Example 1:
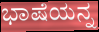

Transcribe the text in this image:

ಭಾಷೆಯನ್ನ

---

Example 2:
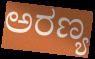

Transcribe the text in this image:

ಅರಣ್ಯ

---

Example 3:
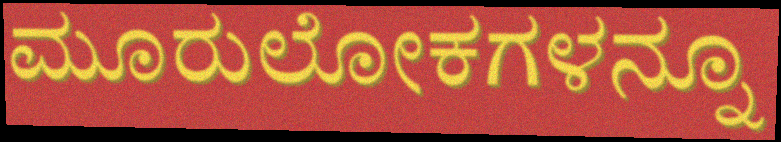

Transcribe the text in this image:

ಮೂರುಲೋಕಗಳನ್ನೂ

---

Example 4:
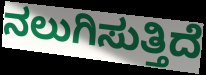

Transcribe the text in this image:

ನಲುಗಿಸುತ್ತಿದೆ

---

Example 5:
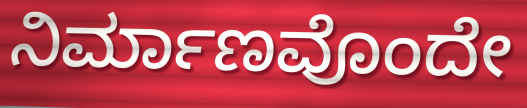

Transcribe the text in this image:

ನಿರ್ಮಾಣವೊಂದೇ